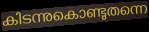
കിടന്നുകൊണ്ടുതന്നെ